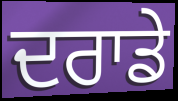
ਦਰਾਡੇ